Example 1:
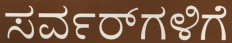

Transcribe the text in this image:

ಸರ್ವರ್‌ಗಳಿಗೆ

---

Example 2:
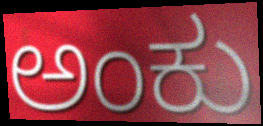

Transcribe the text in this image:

ಅಂಕು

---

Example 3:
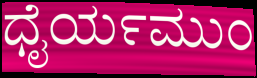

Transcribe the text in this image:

ಧೈರ್ಯಮುಂ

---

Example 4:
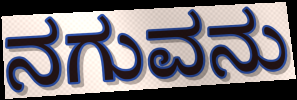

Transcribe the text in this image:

ನಗುವನು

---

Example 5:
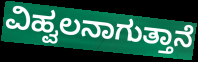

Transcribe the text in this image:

ವಿಹ್ವಲನಾಗುತ್ತಾನೆ